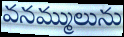
వనమ్ములును